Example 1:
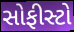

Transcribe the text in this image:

સોફીસ્ટો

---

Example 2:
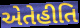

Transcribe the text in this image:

એતેહીતિ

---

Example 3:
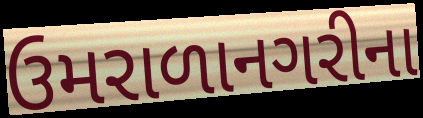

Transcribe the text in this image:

ઉમરાળાનગરીના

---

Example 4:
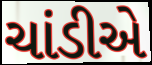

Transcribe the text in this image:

ચાંડીએ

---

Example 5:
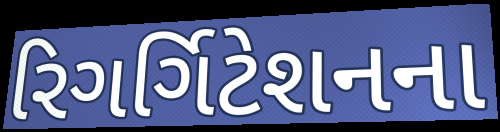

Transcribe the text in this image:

રિગર્ગિટેશનના